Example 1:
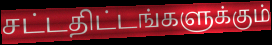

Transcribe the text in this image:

சட்டதிட்டங்களுக்கும்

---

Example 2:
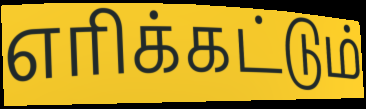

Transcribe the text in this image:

எரிக்கட்டும்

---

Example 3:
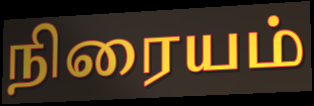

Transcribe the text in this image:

நிரையம்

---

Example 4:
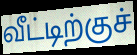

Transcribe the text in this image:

வீட்டிற்குச்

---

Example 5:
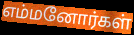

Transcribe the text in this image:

எம்மனோர்கள்